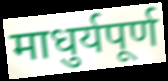
माधुर्यपूर्ण